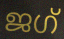
ജഗ്